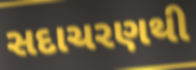
સદાચરણથી